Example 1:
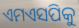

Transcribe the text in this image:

ଏମଏସପିକୁ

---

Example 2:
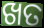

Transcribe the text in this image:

ଖତ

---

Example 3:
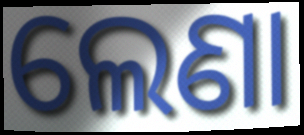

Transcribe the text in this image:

ଲେଣା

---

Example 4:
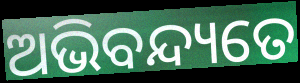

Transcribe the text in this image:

ଅଭିବନ୍ଦ୍ୟତେ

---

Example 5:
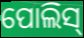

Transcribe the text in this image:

ପୋଲିସ୍